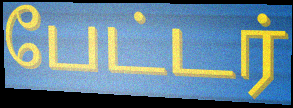
பேட்டர்